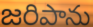
జరిపాను